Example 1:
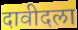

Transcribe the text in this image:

दावीदला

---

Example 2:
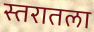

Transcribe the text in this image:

स्तरातला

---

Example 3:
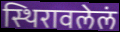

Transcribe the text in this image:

स्थिरावलेलं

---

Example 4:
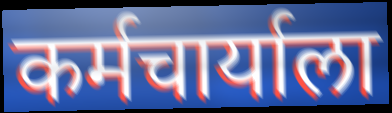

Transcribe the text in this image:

कर्मचार्याला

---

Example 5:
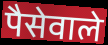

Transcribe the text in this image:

पैसेवाले